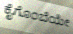
ಕೈಗೊಂಬೆಯೇ